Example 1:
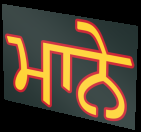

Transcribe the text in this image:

ਮਾਨੇ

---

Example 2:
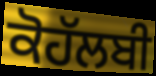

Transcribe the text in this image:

ਕੋਹੱਲਬੀ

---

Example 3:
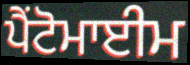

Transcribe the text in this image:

ਪੈਂਟੋਮਾਈਮ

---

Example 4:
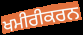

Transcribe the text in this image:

ਖਮੀਰੀਕਰਨ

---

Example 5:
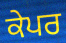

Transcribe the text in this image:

ਕੇਪਰ